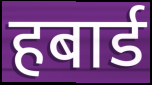
हबार्ड